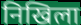
निखिला